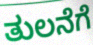
ತುಲನೆಗೆ